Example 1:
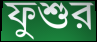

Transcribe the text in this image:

ফুশুর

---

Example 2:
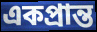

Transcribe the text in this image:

একপ্রান্ত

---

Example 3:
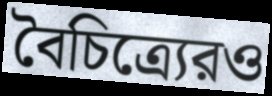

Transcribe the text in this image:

বৈচিত্র্যেরও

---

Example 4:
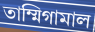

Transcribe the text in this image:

তাম্মিগামাল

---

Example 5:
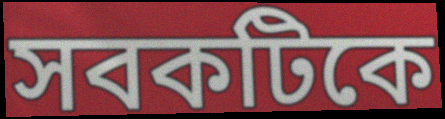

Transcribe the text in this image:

সবকটিকে